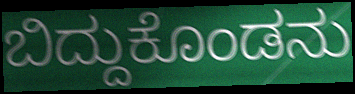
ಬಿದ್ದುಕೊಂಡನು